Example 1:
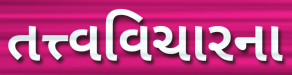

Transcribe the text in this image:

તત્ત્વવિચારના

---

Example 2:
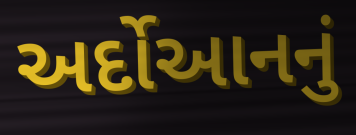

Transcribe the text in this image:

અર્દોઆનનું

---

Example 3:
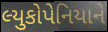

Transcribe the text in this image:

લ્યુકોપેનિયાને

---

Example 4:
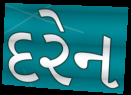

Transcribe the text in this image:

દરેન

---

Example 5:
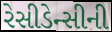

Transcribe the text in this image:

રેસીડેન્સીની